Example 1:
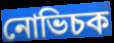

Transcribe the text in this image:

নোভিচক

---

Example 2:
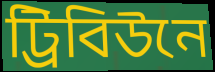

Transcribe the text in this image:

ট্রিবিউনে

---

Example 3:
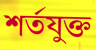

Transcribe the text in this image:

শর্তযুক্ত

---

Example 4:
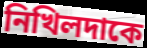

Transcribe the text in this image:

নিখিলদাকে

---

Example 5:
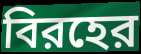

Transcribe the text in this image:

বিরহের